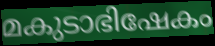
മകുടാഭിഷേകം